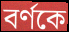
বর্ণকে